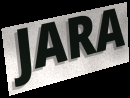
JARA